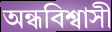
অন্ধবিশ্বাসী